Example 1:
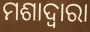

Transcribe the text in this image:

ମଶାଦ୍ୱାରା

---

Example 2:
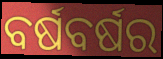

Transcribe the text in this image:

ବର୍ଷବର୍ଷର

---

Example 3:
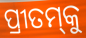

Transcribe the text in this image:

ପ୍ରୀତମ୍‌କୁ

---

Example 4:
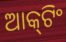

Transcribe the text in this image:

ଆକ୍‌ଟିଂ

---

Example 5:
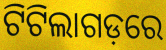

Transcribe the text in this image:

ଟିଟିଲାଗଡ଼ରେ